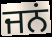
ਜਨਂ